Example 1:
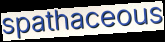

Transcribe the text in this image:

spathaceous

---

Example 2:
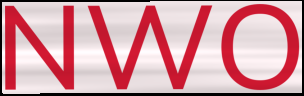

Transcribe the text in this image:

NWO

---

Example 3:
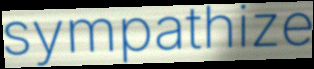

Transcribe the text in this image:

sympathize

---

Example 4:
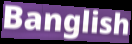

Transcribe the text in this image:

Banglish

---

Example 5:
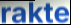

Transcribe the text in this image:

rakte